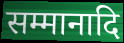
सम्मानादि